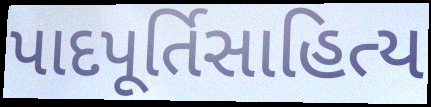
પાદપૂર્તિસાહિત્ય